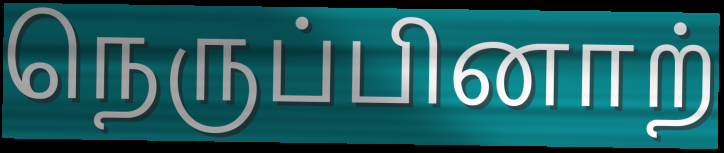
நெருப்பினாற்